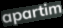
apartim